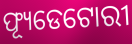
ଫ୍ୟୂଡେଟୋରୀ